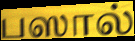
பஸால்